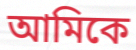
আমিকে